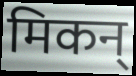
मिकन्